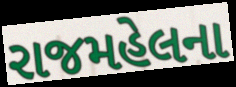
રાજમહેલના